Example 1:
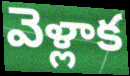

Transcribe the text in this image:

వెళ్లాక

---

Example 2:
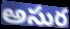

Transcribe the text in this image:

అసుర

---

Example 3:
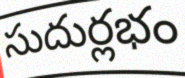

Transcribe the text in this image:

సుదుర్లభం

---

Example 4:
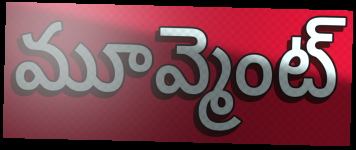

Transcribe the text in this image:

మూవ్మెంట్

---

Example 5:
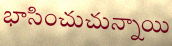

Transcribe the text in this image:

భాసించుచున్నాయి